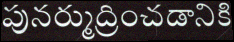
పునర్ముద్రించడానికి